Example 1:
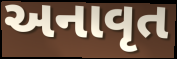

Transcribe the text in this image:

અનાવૃત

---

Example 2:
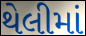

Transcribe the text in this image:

થેલીમાં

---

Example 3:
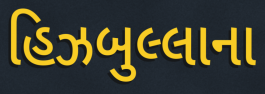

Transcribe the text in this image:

હિઝબુલ્લાના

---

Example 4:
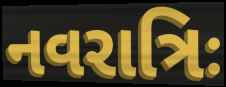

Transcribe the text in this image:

નવરાત્રિઃ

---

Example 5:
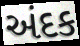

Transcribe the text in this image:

અંદક